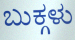
ಬುಕ್ಗಳು